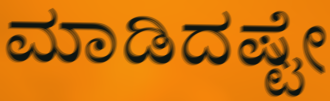
ಮಾಡಿದಷ್ಟೇ